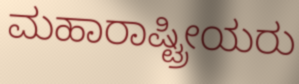
ಮಹಾರಾಷ್ಟ್ರೀಯರು